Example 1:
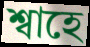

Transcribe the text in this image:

শ্বাহে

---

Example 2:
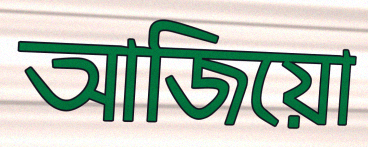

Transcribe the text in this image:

আজিয়ো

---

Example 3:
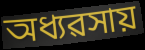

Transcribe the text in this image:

অধ্যৱসায়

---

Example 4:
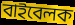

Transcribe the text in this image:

বাইবেলক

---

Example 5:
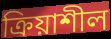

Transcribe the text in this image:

ক্ৰিয়াশীল